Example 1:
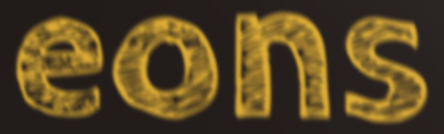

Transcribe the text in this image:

eons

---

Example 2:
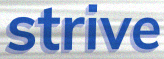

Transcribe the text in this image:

strive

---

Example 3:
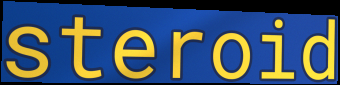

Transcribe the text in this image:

steroid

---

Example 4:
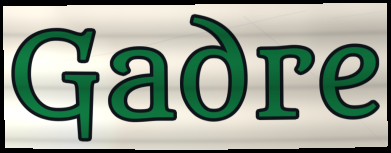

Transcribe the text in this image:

Gadre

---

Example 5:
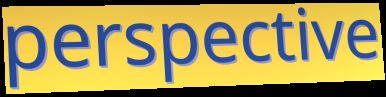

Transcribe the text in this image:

perspective